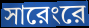
সারেংরে